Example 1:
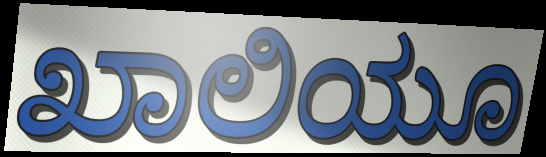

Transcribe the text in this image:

ಖಾಲಿಯೂ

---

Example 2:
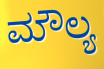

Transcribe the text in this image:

ಮೌಲ್ಯ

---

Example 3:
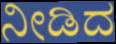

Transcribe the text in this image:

ನೀಡಿದ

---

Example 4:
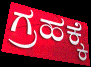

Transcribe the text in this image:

ಗ್ರಹಕ್ಕೆ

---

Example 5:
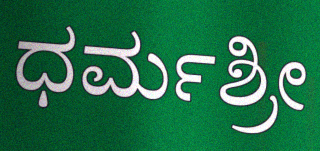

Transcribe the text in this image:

ಧರ್ಮಶ್ರೀ